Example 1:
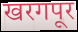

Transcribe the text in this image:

खरगपूर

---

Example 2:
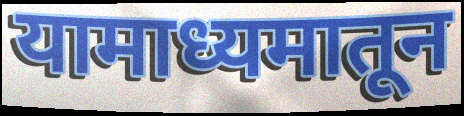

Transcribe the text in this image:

यामाध्यमातून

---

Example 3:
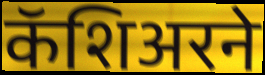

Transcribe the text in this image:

कॅशिअरने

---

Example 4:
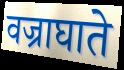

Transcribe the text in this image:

वज्राघाते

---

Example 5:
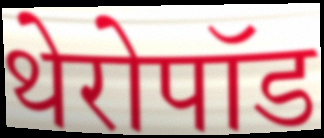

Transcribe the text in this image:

थेरोपॉड